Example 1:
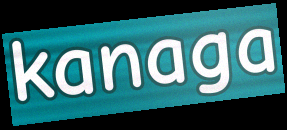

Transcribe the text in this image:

kanaga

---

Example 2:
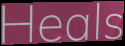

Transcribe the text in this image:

Heals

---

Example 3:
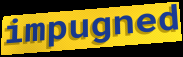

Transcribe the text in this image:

impugned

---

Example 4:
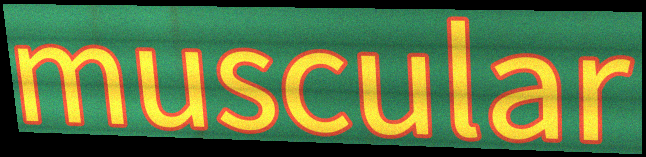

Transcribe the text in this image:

muscular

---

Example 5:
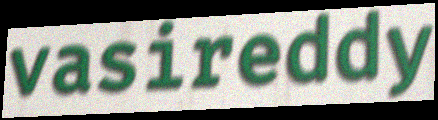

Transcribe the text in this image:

vasireddy